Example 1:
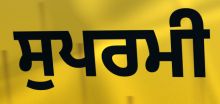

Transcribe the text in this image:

ਸੁਪਰਮੀ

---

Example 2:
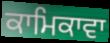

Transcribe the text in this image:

ਕਾਮਿਕਾਵਾ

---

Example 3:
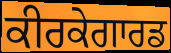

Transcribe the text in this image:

ਕੀਰਕੇਗਾਰਡ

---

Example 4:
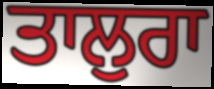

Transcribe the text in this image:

ਤਾਲੁਰਾ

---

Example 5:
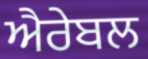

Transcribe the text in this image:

ਐਰੇਬਲ